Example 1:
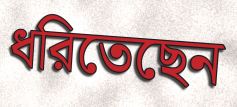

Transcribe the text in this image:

ধরিতেছেন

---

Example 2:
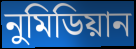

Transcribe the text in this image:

নুমিডিয়ান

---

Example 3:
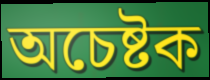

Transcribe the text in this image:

অচেষ্টক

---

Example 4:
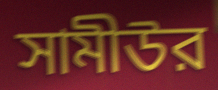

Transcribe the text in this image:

সামীউর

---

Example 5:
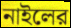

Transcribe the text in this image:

নাইলের